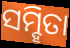
ସମ୍ହିତା